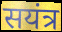
सयंत्र